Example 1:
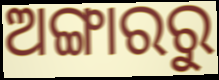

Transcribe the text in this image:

ଅଙ୍ଗାରରୁ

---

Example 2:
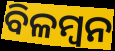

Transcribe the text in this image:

ବିଳମ୍ବନ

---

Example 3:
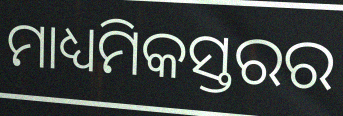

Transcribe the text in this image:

ମାଧ୍ୟମିକସ୍ତରର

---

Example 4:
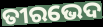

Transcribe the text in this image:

ତୀରଭେଦ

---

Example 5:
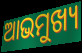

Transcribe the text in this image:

ଆଭମୁଖ୍ୟ